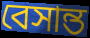
বেসান্ত